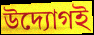
উদ্যোগই